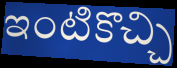
ఇంటికొచ్చి